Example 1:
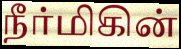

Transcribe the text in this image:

நீர்மிகின்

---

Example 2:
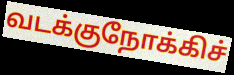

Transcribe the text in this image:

வடக்குநோக்கிச்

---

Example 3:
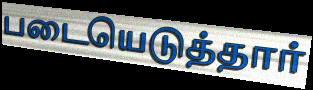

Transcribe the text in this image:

படையெடுத்தார்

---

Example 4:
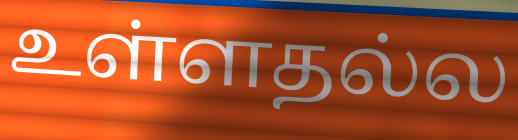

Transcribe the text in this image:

உள்ளதல்ல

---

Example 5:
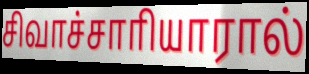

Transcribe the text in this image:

சிவாச்சாரியாரால்